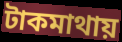
টাকমাথায়